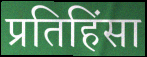
प्रतिहिंसा